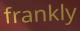
frankly